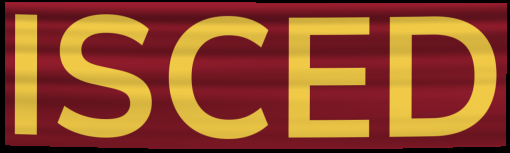
ISCED